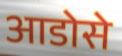
आडोसे